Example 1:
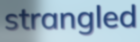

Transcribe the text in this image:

strangled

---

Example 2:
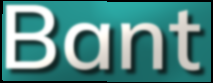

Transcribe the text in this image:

Bant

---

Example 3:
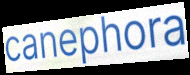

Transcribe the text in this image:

canephora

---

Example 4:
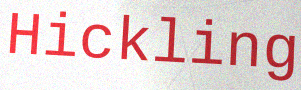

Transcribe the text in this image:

Hickling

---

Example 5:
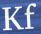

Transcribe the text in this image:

Kf